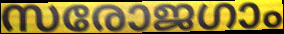
സരോജഗാം